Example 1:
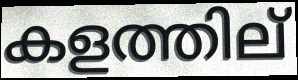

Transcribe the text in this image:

കളത്തില്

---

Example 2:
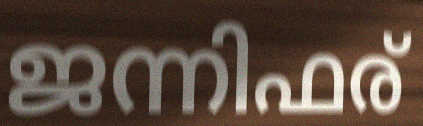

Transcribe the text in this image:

ജന്നിഫര്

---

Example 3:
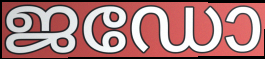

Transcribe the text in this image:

ജഡോ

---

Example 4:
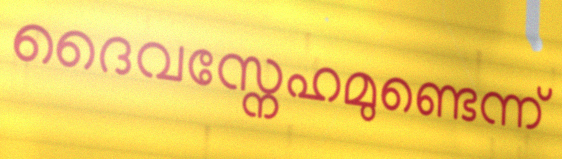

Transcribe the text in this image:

ദൈവസ്നേഹമുണ്ടെന്ന്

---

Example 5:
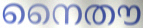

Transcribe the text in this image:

നൈതൗ